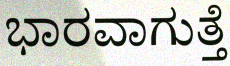
ಭಾರವಾಗುತ್ತೆ